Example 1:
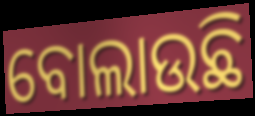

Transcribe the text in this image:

ବୋଲାଉଛି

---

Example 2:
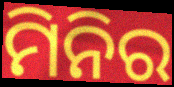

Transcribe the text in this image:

ମିନିର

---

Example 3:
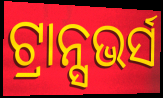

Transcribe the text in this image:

ଟ୍ରାନ୍ସଭର୍ସ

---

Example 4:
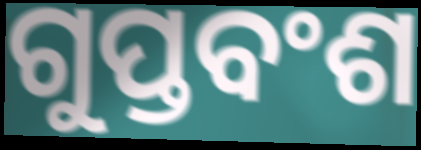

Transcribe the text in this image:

ଗୁପ୍ତବଂଶ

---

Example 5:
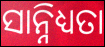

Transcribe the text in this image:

ସାନ୍ନିଧ୍ୟତା